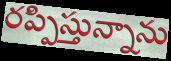
రప్పిస్తున్నాను